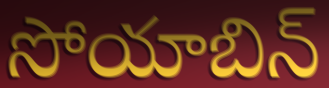
సోయాబిన్